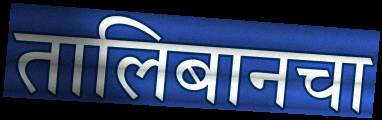
तालिबानचा